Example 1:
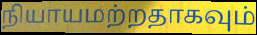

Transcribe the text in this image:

நியாயமற்றதாகவும்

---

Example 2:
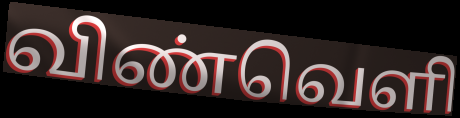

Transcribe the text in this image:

விண்வெளி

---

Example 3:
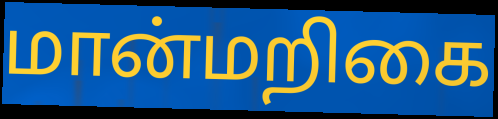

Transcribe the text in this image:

மான்மறிகை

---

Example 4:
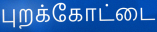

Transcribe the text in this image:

புறக்கோட்டை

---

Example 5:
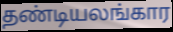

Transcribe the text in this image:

தண்டியலங்கார